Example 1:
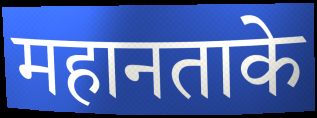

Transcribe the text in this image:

महानताके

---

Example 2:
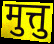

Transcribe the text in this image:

मुत्तु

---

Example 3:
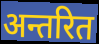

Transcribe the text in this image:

अन्तरित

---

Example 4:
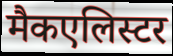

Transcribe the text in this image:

मैकएलिस्टर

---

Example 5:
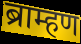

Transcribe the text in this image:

ब्राम्हण